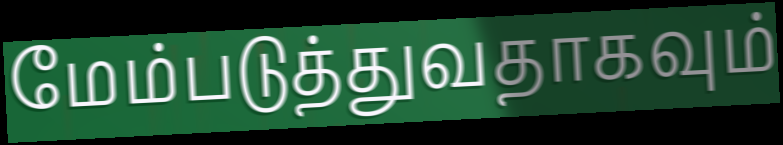
மேம்படுத்துவதாகவும்